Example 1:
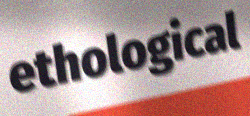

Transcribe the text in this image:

ethological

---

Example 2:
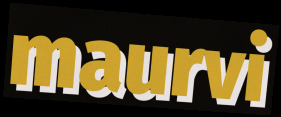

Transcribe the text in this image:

maurvi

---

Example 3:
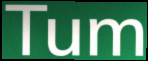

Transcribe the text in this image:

Tum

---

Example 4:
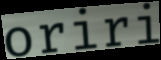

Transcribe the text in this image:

oriri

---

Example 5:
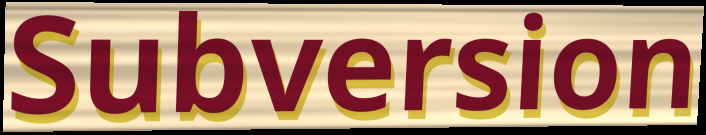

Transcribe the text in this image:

Subversion